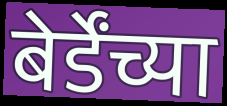
बेर्डेंच्या